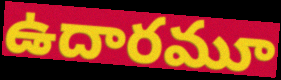
ఉదారమూ